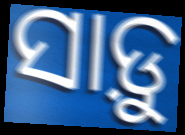
ସାଡ଼ୁ